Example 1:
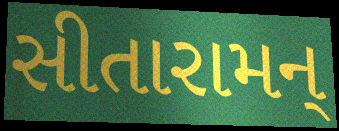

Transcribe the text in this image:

સીતારામન્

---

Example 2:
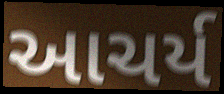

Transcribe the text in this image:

આચર્ય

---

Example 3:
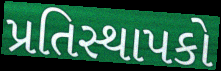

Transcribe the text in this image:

પ્રતિસ્થાપકો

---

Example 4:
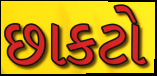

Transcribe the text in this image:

છાકટો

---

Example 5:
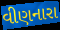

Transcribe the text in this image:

વીણનારા